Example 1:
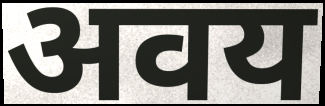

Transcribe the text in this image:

अवय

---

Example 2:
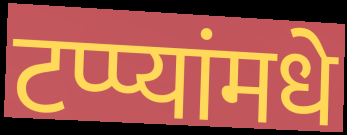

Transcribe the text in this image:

टप्प्यांमधे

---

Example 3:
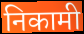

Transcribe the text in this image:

निकामी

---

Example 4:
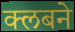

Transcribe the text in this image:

क्लबने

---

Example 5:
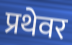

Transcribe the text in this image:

प्रथेवर